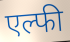
एल्फी